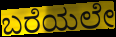
ಬರೆಯಲೇ